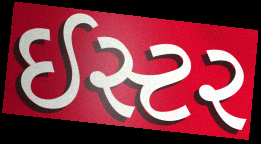
ઈસ્ટર